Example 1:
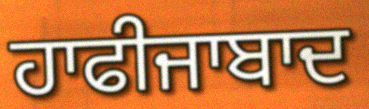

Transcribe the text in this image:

ਹਾਫੀਜਾਬਾਦ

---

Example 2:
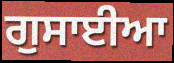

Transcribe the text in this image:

ਗੁਸਾਈਆ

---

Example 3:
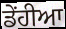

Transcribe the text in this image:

ਡੇਂਹੀਆ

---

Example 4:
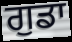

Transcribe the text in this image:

ਗੁਡਾ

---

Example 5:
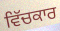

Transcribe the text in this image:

ਵਿੱਚਕਾਰ